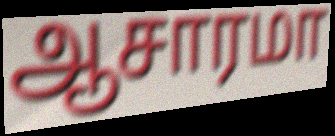
ஆசாரமா